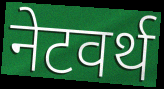
नेटवर्थ